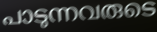
പാടുന്നവരുടെ